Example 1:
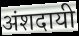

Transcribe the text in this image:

अंशदायी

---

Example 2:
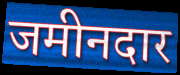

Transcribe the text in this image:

जमीनदार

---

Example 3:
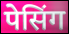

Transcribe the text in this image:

पेसिंग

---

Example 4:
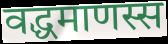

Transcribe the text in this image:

वद्धमाणस्स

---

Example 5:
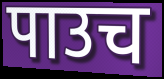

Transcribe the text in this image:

पाउच